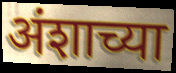
अंशाच्या